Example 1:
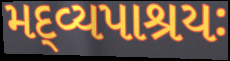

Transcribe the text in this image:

મદ્વ્યપાશ્રયઃ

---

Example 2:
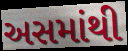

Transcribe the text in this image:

અસમાંથી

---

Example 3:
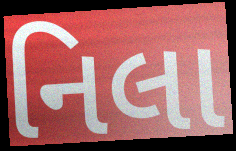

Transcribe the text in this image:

નિલા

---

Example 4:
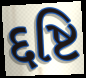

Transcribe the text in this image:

દ્દષ્ટિ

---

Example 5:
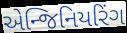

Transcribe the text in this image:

એન્જિનિયરિંગ